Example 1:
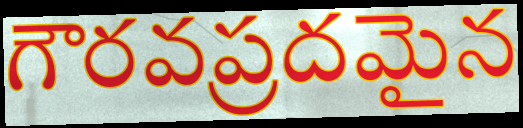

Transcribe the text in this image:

గౌరవప్రదమైన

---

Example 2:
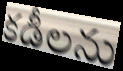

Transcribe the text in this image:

కడీలను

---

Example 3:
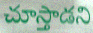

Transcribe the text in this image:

చూస్తాడని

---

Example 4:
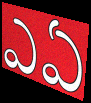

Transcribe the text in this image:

ఎఏ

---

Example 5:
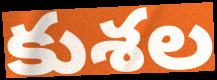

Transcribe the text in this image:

కుశల